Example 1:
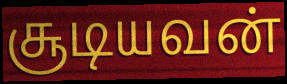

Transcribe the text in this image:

சூடியவன்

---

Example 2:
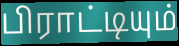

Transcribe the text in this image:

பிராட்டியும்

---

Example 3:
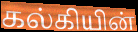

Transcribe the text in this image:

கல்கியின்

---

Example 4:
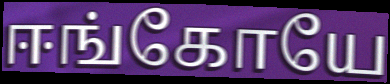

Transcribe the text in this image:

ஈங்கோயே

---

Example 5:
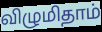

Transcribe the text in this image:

விழுமிதாம்